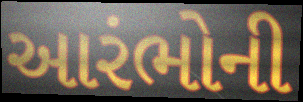
આરંભોની